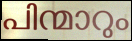
പിന്മാറും